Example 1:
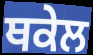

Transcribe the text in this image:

ਥਕੇਲ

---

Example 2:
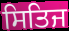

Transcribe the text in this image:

ਸਿਤਿਜ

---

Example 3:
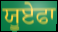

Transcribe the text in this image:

ਯੂਏਫਾ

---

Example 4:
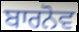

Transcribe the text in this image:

ਬਾਰਨੋਵ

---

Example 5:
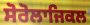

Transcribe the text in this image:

ਸੋਰੋਲਾਜਿਕਲ